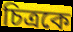
চিত্রকে